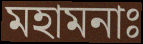
মহামনাঃ